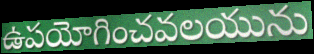
ఉపయోగించవలయును